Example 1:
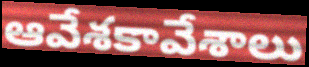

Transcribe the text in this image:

ఆవేశకావేశాలు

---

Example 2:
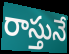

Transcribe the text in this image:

రాస్తునే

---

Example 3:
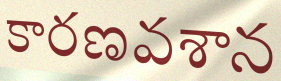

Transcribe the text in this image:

కారణవశాన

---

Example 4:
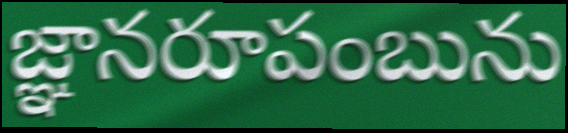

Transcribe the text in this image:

జ్ఞానరూపంబును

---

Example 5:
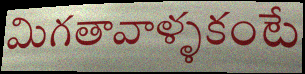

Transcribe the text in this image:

మిగతావాళ్ళకంటే